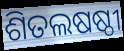
ଶିତଲଷଷ୍ଠୀ